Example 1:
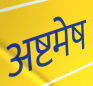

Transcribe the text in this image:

अष्टमेष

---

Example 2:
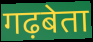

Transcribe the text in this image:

गढ़बेता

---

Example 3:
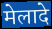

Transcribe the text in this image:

मेलादे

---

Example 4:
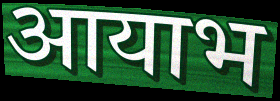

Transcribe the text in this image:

आयाभ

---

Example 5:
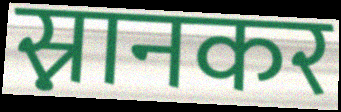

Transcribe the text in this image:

स्नानकर